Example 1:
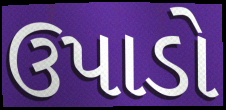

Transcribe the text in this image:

ઉપાડો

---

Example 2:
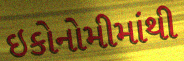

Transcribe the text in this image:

ઇકોનોમીમાંથી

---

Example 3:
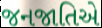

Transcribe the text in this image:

જનજાતિએ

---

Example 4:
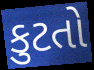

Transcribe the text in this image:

કુટતો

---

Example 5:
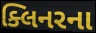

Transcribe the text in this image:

ક્લિનરના